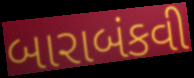
બારાબંકવી